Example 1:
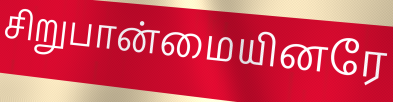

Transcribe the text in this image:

சிறுபான்மையினரே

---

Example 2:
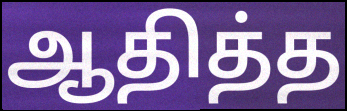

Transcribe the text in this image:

ஆதித்த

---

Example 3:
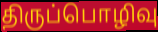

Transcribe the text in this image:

திருப்பொழிவு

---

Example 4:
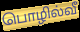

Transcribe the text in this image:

பொழில்வீ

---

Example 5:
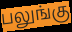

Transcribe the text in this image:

பலுங்கு